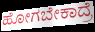
ಹೋಗಬೇಕಾದ್ರೆ